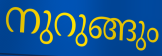
നുറുങ്ങും